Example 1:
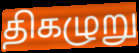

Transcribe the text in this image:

திகழுறு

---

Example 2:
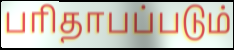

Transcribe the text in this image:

பரிதாபப்படும்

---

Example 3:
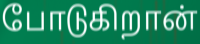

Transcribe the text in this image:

போடுகிறான்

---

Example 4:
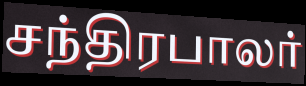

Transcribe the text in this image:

சந்திரபாலர்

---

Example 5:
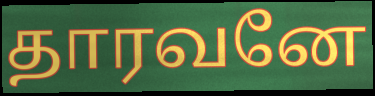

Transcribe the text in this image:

தாரவனே